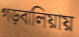
গড়বালিয়ায়